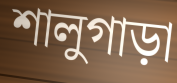
শালুগাড়া